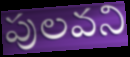
పులవని